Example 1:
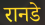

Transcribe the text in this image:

रानडे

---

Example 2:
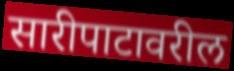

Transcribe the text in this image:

सारीपाटावरील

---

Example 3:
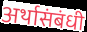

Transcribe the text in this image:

अर्थासंबंधी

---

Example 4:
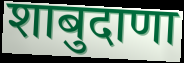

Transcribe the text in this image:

शाबुदाणा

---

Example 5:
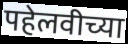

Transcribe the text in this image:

पहेलवीच्या